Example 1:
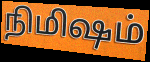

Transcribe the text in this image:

நிமிஷம்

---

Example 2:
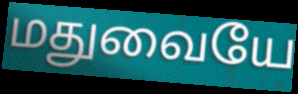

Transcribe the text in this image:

மதுவையே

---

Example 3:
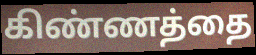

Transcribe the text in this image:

கிண்ணத்தை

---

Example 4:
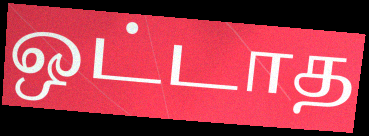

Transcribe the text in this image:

ஒட்டாத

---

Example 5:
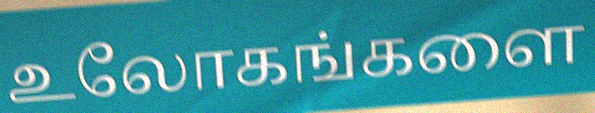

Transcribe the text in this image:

உலோகங்களை